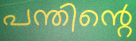
പന്തിന്റെ